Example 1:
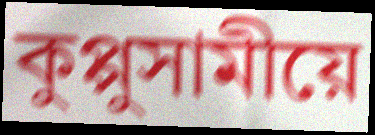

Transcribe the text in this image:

কুপ্পুসামীয়ে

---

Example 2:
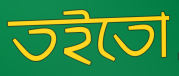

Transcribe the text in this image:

তইতো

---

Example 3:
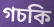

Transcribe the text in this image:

গচকি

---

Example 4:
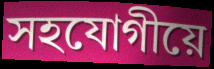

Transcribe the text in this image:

সহযোগীয়ে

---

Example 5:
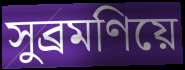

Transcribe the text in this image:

সুব্ৰমণিয়ে